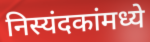
निस्यंदकांमध्ये